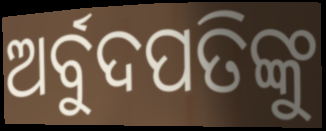
ଅର୍ବୁଦପତିଙ୍କୁ